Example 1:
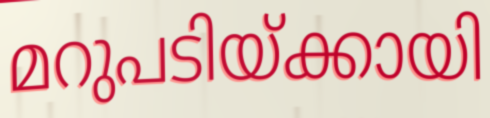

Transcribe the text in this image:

മറുപടിയ്ക്കായി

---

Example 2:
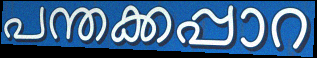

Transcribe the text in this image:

പന്തക്കപ്പാറ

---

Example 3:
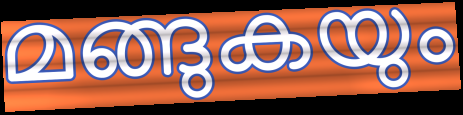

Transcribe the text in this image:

മങ്ങുകയും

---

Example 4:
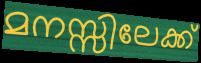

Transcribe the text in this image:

മനസ്സിലേക്ക്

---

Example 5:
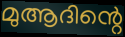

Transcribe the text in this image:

മുആദിന്റെ